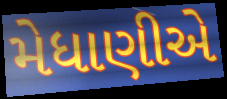
મેધાણીએ